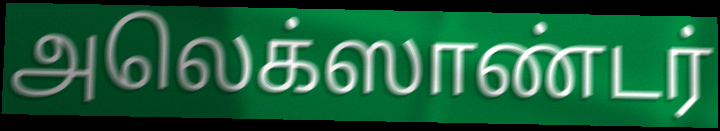
அலெக்ஸாண்டர்